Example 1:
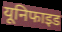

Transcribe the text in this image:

यूनिफाइड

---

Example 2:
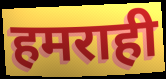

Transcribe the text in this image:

हमराही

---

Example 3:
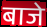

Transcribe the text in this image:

बाजे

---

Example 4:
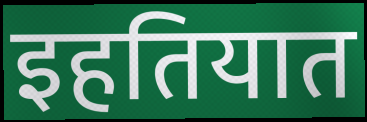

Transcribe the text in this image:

इहतियात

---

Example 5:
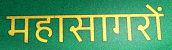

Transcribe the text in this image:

महासागरों